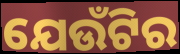
ଯେଉଁଟିର